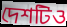
দেশটিও